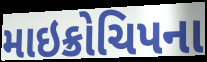
માઇક્રોચિપના